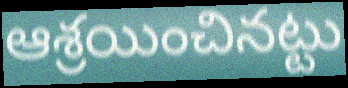
ఆశ్రయించినట్టు